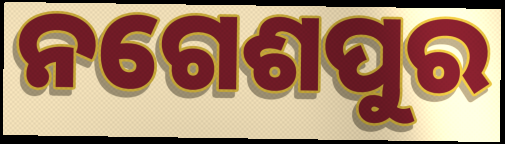
ନଗେଶପୁର